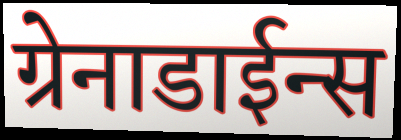
ग्रेनाडाईन्स